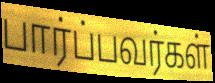
பார்ப்பவர்கள்